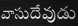
వాసుదేవుడు